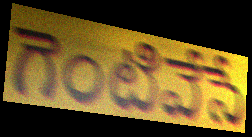
గెంటివేసే